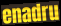
enadru